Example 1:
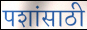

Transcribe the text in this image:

पशांसाठी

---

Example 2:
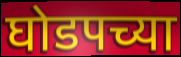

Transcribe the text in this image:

घोडपच्या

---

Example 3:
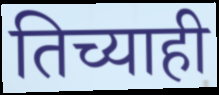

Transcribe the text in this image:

तिच्याही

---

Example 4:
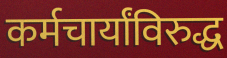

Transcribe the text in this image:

कर्मचार्यांविरुद्ध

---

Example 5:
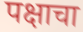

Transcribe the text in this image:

पक्षाचा